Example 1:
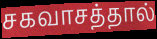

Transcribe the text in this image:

சகவாசத்தால்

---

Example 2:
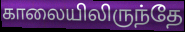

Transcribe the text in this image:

காலையிலிருந்தே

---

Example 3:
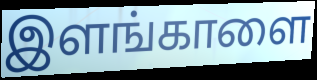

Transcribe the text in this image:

இளங்காளை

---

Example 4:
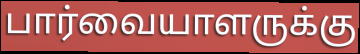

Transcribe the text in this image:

பார்வையாளருக்கு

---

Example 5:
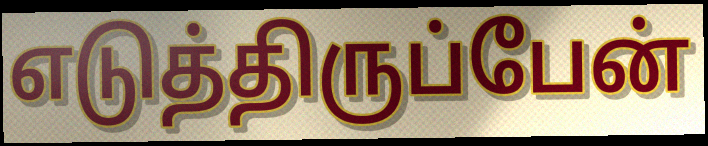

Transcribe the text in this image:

எடுத்திருப்பேன்